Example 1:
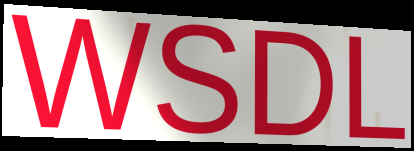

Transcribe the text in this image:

WSDL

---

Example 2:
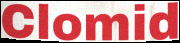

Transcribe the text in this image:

Clomid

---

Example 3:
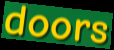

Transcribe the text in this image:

doors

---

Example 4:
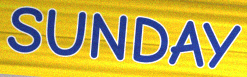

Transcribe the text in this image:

SUNDAY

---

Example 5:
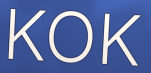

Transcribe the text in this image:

KOK